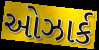
ઓઝાર્ક